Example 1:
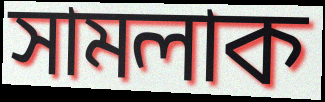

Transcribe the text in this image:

সামলাক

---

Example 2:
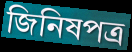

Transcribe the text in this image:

জিনিষপত্র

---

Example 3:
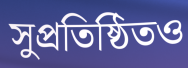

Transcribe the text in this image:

সুপ্রতিষ্ঠিতও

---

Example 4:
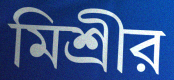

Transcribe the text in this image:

মিশ্রীর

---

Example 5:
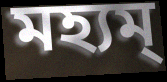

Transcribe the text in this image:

মহ্যম্